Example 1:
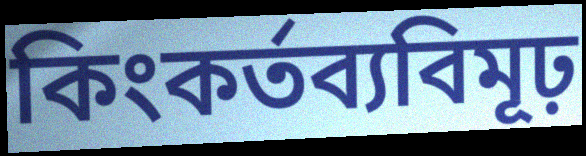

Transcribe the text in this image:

কিংকর্তব্যবিমূঢ়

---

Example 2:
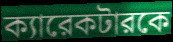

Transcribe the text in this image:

ক্যারেকটারকে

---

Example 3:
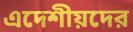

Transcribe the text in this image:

এদেশীয়দের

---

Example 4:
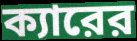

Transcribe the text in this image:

ক্যারের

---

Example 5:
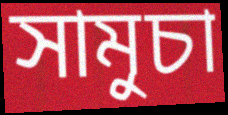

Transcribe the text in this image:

সামুচা